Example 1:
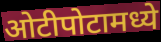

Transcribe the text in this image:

ओटीपोटामध्ये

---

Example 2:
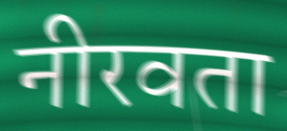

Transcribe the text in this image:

नीरवता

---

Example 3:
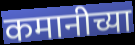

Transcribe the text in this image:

कमानीच्या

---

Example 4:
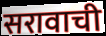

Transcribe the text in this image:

सरावाची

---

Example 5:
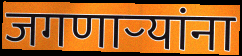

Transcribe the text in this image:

जगणाऱ्यांना